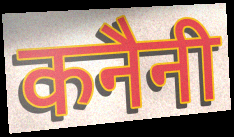
कनैनी